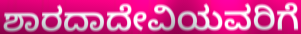
ಶಾರದಾದೇವಿಯವರಿಗೆ